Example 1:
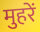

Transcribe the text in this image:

मुहरें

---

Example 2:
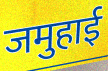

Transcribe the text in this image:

जमुहाई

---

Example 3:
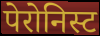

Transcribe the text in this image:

पेरोनिस्ट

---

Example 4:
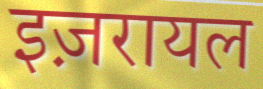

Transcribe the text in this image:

इज़रायल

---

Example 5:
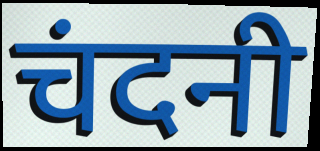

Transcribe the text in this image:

चंदनी